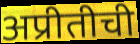
अप्रीतीची